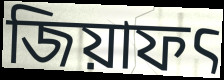
জিয়াফৎ